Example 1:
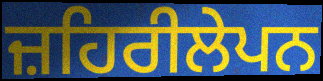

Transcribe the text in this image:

ਜ਼ਹਿਰੀਲੇਪਨ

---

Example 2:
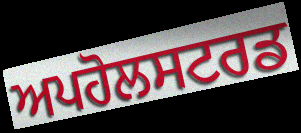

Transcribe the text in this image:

ਅਪਹੋਲਸਟਰਡ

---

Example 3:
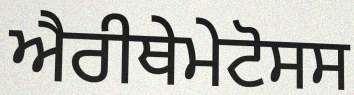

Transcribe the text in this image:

ਐਰੀਥੇਮੇਟੋਸਸ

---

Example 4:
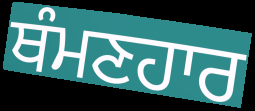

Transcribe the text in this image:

ਥੰਮਣਹਾਰ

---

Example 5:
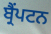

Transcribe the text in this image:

ਬ੍ਰੈਂਪਟਨ